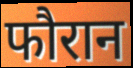
फौरान